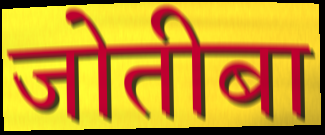
जोतीबा